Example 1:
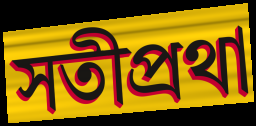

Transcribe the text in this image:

সতীপ্রথা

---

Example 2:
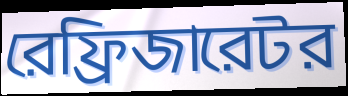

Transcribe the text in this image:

রেফ্রিজারেটর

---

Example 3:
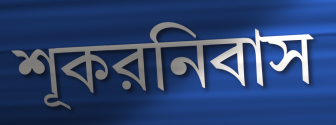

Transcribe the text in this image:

শূকরনিবাস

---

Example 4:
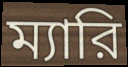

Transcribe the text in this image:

ম্যারি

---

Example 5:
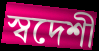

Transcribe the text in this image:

স্বদেশী